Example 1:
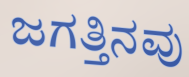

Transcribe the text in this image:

ಜಗತ್ತಿನವು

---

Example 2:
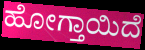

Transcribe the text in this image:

ಹೋಗ್ತಾಯಿದೆ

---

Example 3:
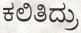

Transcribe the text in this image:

ಕಲಿತಿದ್ರು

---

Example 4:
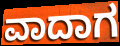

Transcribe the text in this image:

ವಾದಾಗ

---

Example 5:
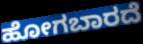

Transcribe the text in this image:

ಹೋಗಬಾರದೆ